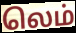
லெம்